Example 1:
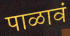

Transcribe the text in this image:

पाळावं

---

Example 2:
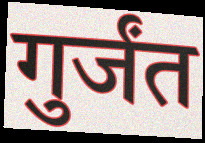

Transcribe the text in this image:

गुर्जंत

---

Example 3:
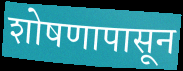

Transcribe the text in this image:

शोषणापासून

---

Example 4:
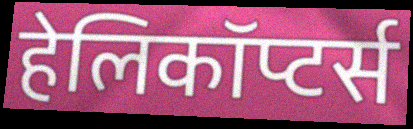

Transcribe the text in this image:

हेलिकॉप्टर्स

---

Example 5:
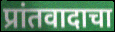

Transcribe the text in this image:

प्रांतवादाचा